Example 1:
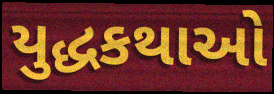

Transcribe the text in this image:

યુદ્ધકથાઓ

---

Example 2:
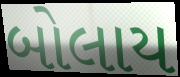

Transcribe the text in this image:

બોલાય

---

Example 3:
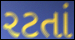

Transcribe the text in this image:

રટતાં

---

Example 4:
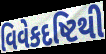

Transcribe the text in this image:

વિવેકદષ્ટિથી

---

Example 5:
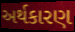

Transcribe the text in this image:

અર્થકારણ